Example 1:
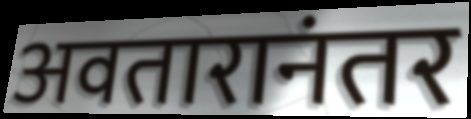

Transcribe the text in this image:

अवतारानंतर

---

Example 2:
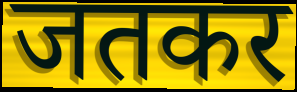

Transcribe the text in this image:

जतकर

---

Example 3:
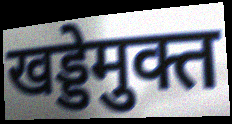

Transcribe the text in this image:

खड्डेमुक्त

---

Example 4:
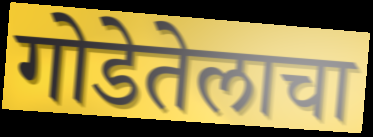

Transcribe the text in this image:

गोडेतेलाचा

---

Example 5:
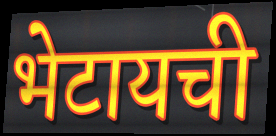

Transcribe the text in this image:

भेटायची